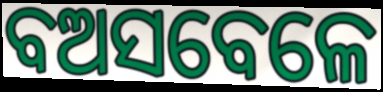
ବଅସବେଳେ